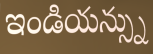
ఇండియన్స్ను